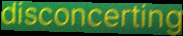
disconcerting